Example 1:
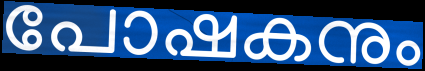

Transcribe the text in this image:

പോഷകനും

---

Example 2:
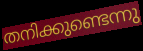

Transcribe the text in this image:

തനിക്കുണ്ടെന്നു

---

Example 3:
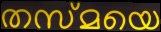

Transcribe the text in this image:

തസ്മയെ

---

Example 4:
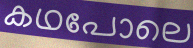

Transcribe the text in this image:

കഥപോലെ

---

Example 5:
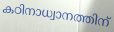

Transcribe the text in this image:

കഠിനാധ്വാനത്തിന്